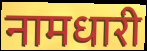
नामधारी